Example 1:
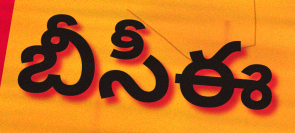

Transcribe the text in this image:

బీసీఈ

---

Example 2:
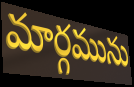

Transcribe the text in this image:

మార్గమును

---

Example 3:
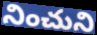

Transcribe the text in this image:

నించుని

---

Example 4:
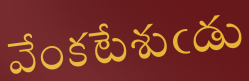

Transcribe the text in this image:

వేంకటేశుఁడు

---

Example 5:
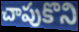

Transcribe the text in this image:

చాపుకొని